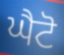
ਘੈਟੋ